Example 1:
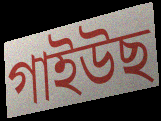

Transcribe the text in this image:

গাইউছ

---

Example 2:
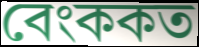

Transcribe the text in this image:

বেংককত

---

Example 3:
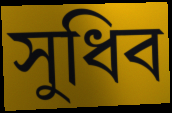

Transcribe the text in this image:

সুধিব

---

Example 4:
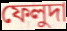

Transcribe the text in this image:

ফেলুদা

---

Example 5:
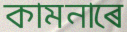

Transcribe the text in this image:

কামনাৰে